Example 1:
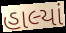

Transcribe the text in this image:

હાલ્યાં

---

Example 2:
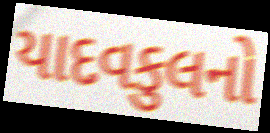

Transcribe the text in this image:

યાદવકુલનો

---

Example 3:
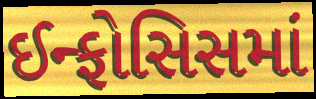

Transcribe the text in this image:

ઈન્ફોસિસમાં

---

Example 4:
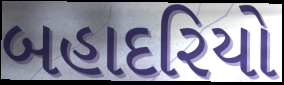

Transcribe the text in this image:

બહાદરિયો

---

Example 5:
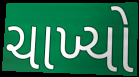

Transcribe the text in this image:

ચાખ્યો